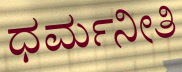
ಧರ್ಮನೀತಿ